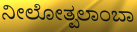
ನೀಲೋತ್ಪಲಾಂಬಾ